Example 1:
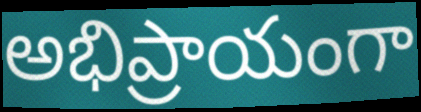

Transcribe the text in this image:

అభిప్రాయంగా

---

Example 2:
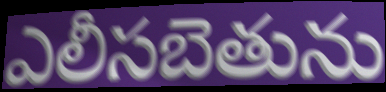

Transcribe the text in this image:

ఎలీసబెతును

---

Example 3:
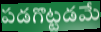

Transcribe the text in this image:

పడగొట్టడమే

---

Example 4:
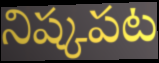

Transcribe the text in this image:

నిష్కపట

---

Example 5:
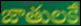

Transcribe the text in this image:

జాతులకే